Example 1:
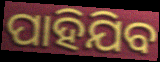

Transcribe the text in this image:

ପାହିଯିବ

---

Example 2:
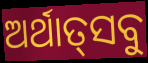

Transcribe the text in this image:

ଅର୍ଥାତ୍‌ସବୁ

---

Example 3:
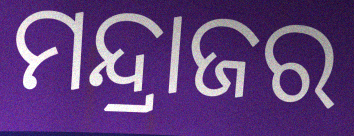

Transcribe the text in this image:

ମନ୍ଦ୍ରାଜର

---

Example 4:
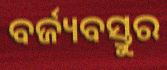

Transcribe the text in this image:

ବର୍ଜ୍ୟବସ୍ତୁର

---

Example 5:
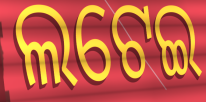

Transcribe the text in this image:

ଲଟେଇ